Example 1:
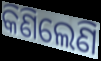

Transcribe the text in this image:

କିଣିଲେଣି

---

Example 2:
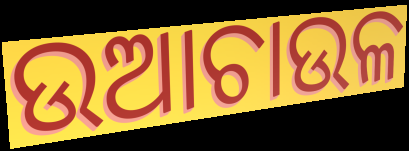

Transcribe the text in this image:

ଉଆଚାଉଳ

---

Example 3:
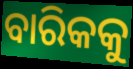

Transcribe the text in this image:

ବାରିକକୁ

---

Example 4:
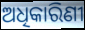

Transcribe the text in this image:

ଅଧିକାରିଣୀ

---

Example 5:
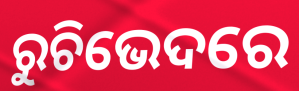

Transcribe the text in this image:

ରୁଚିଭେଦରେ